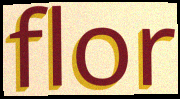
flor